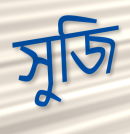
সুজি